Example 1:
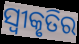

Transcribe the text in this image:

ସ୍ଵୀକୃତିର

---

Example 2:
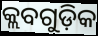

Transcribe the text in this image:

କ୍ଲବଗୁଡ଼ିକ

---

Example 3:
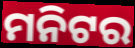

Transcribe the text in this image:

ମନିଟର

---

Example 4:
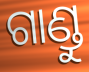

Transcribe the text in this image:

ଗାଣ୍ଡୁ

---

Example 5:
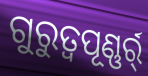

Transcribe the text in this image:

ଗୁରୁତ୍ୱପୂଣ୍ଣର୍ର୍